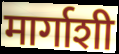
मार्गाशी